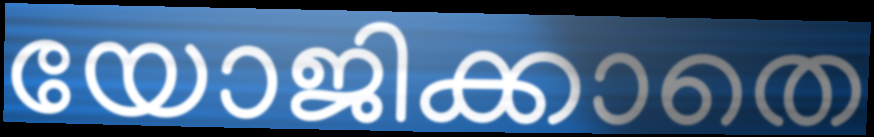
യോജിക്കാതെ